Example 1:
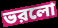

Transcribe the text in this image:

ভরলো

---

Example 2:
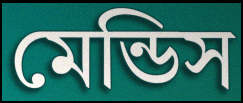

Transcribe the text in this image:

মেন্ডিস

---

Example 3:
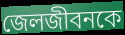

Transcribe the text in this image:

জেলজীবনকে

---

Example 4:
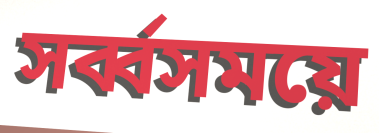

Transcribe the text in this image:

সর্ব্বসময়ে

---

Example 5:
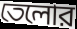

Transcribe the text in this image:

তেলোর